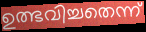
ഉത്ഭവിച്ചതെന്ന്